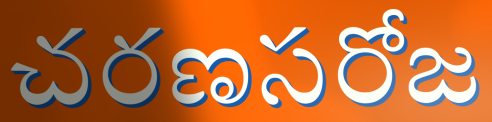
చరణసరోజ